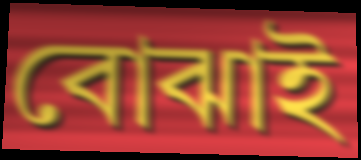
বোঝাই